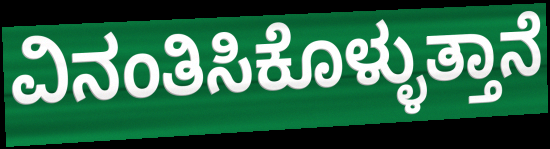
ವಿನಂತಿಸಿಕೊಳ್ಳುತ್ತಾನೆ